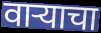
वाऱ्याचा